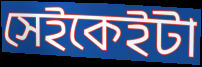
সেইকেইটা